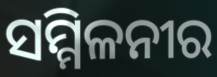
ସମ୍ମିଳନୀର